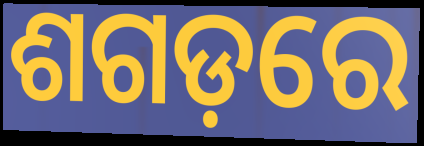
ଶଗଡ଼ରେ